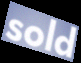
sold